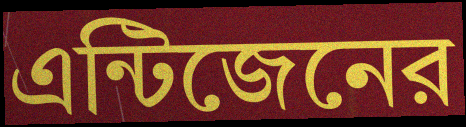
এন্টিজেনের